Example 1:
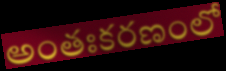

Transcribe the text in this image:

అంతఃకరణంలో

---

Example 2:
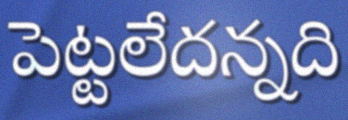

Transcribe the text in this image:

పెట్టలేదన్నది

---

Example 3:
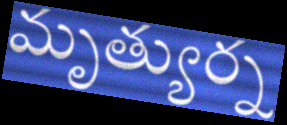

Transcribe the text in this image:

మృత్యుర్న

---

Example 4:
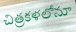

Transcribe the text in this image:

చిత్రకళలోనూ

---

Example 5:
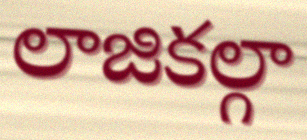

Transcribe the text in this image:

లాజికల్గా